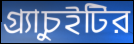
গ্র্যাচুইটির